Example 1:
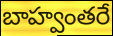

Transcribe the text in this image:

బాహ్వంతరే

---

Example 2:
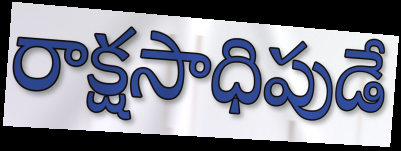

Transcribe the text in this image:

రాక్షసాధిపుడే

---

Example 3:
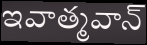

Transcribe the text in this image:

ఇవాత్మవాన్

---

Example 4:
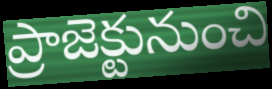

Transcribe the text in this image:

ప్రాజెక్టునుంచి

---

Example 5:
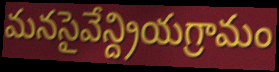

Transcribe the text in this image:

మనసైవేన్ద్రియగ్రామం